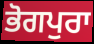
ਭੋਗਪੁਰਾ